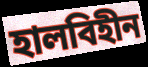
হালবিহীন